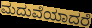
ಮದುವೆಯಾದರೆ